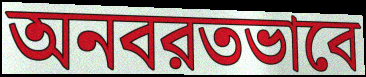
অনবরতভাবে